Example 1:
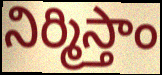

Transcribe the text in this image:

నిర్మిస్తాం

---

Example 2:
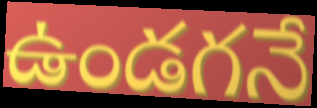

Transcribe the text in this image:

ఉండగనే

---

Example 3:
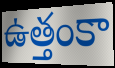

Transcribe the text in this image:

ఉత్తంకా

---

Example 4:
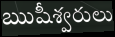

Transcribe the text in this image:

ఋషీశ్వరులు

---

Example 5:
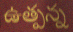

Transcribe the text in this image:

ఉత్పన్న